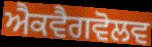
ਐਕਵੈਗਵੋਲਵ